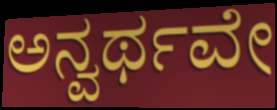
ಅನ್ವರ್ಥವೇ